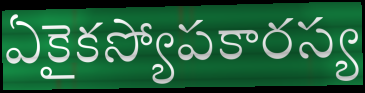
ఏకైకస్యోపకారస్య